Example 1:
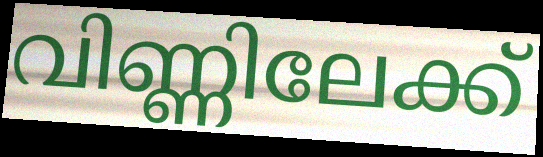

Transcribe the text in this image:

വിണ്ണിലേക്ക്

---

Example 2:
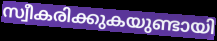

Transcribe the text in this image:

സ്വീകരിക്കുകയുണ്ടായി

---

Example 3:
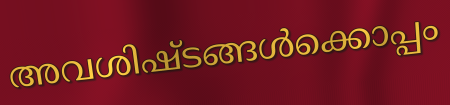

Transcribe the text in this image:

അവശിഷ്ടങ്ങൾക്കൊപ്പം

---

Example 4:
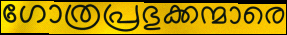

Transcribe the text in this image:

ഗോത്രപ്രഭുക്കന്മാരെ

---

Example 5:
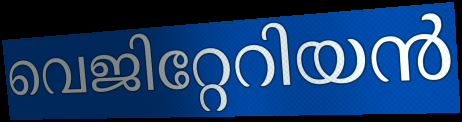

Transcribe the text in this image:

വെജിറ്റേറിയൻ